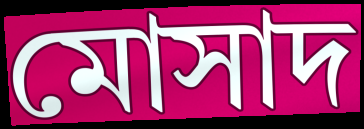
মোসাদ